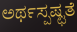
ಅರ್ಥಸ್ಪಷ್ಟತೆ